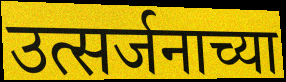
उत्सर्जनाच्या